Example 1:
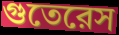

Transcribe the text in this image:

গুতেরেস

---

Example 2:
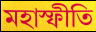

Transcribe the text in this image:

মহাস্ফীতি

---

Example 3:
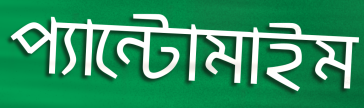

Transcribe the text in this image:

প্যান্টোমাইম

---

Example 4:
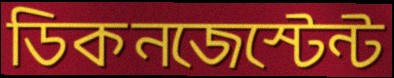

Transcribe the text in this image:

ডিকনজেস্টেন্ট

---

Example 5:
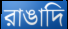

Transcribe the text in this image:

রাঙাদি